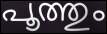
പൂത്തും